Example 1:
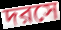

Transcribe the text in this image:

দরসে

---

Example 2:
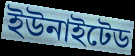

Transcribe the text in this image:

ইউনাইটেড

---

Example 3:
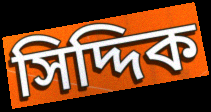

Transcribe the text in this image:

সিদ্দিক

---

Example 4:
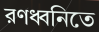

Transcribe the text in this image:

রণধ্বনিতে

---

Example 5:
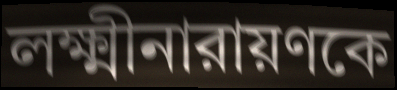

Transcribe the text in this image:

লক্ষ্মীনারায়ণকে